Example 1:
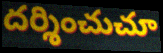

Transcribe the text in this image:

దర్శించుచూ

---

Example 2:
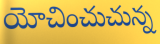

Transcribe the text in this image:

యోచించుచున్న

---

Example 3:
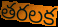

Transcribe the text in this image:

తరలక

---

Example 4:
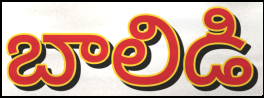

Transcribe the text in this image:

బాలిడి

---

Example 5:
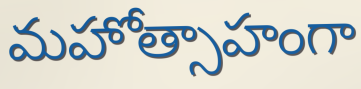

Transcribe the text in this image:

మహోత్సాహంగా